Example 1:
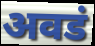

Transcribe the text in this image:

अवडं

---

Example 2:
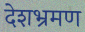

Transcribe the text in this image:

देशभ्रमण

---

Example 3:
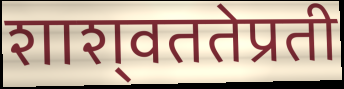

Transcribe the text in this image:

शाश्वततेप्रती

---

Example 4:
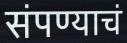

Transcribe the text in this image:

संपण्याचं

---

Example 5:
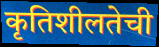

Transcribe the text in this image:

कृतिशीलतेची